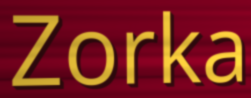
Zorka